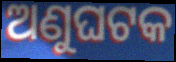
ଅଣୁଘଟକ